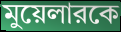
মুয়েলারকে